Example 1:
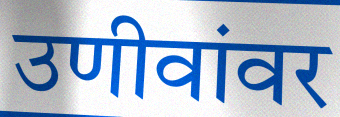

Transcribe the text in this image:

उणीवांवर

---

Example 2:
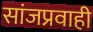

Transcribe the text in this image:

सांजप्रवाही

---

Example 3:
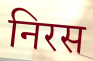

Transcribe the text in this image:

निरस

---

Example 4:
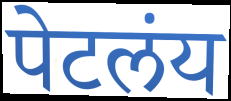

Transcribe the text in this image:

पेटलंय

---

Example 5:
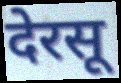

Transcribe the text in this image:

देरसू